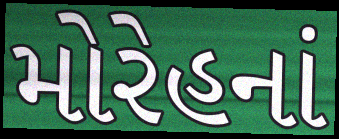
મોરેહનાં